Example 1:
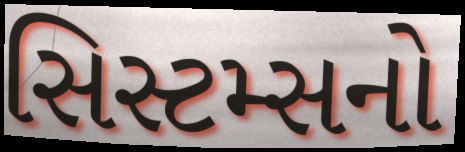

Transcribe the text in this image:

સિસ્ટમ્સનો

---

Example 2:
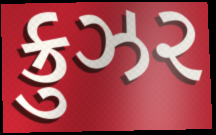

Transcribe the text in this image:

ક્રુઝર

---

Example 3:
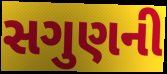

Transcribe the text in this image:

સગુણની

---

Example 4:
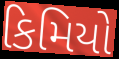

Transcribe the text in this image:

કિમિયો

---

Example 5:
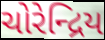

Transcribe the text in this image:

ચોરેન્દ્રિય